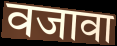
वजावा